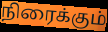
நிரைக்கும்